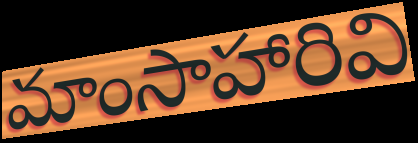
మాంసాహారివి